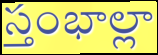
స్తంభాల్లా